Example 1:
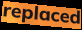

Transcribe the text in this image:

replaced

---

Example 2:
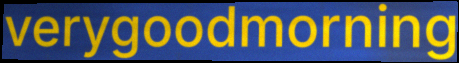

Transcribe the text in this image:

verygoodmorning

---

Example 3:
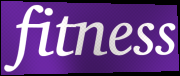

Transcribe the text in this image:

fitness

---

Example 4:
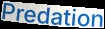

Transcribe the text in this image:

Predation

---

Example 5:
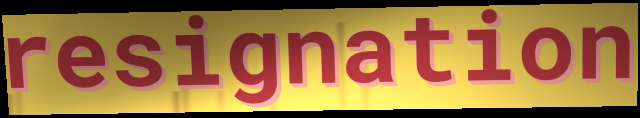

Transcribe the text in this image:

resignation